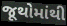
જૂથોમાંથી